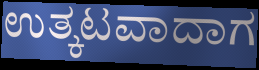
ಉತ್ಕಟವಾದಾಗ